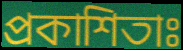
প্রকাশিতাঃ